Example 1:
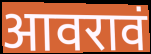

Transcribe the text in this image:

आवरावं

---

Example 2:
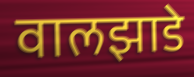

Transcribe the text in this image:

वालझाडे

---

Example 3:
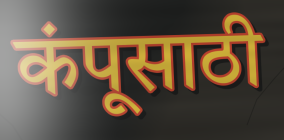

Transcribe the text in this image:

कंपूसाठी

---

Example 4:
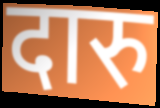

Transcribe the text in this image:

दारु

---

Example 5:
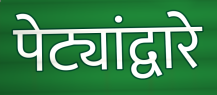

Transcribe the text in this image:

पेट्यांद्वारे